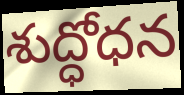
శుద్ధోధన